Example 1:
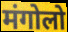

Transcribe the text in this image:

मंगोलो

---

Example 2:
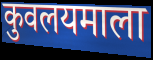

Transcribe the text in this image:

कुवलयमाला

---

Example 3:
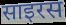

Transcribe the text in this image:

साइरस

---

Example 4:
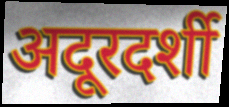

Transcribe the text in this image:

अदूरदर्शी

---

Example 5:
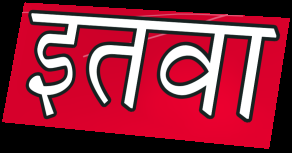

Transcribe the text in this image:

इतवा